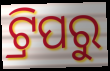
ଟ୍ରିପରୁ